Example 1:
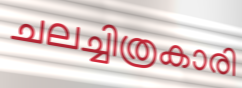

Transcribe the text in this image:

ചലച്ചിത്രകാരി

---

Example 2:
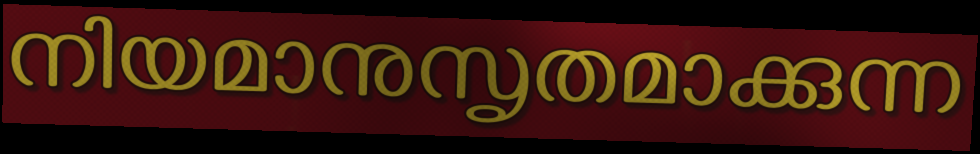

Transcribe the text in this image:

നിയമാനുസൃതമാക്കുന്ന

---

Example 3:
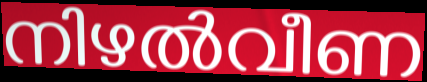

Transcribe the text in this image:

നിഴൽവീണ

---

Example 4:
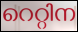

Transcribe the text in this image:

റെറ്റിന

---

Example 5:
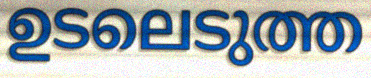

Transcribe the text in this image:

ഉടലെടുത്ത